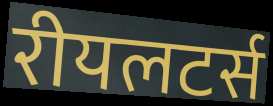
रीयलटर्स